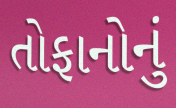
તોફાનોનું